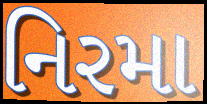
નિરમા